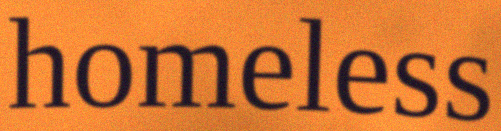
homeless